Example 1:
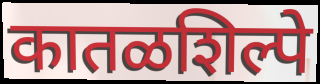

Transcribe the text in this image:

कातळशिल्पे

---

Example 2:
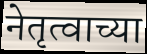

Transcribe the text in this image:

नेतृत्वाच्या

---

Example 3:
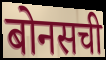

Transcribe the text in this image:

बोनसची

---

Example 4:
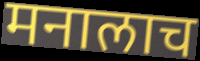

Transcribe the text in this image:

मनालाच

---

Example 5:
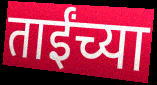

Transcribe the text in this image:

ताईंच्या